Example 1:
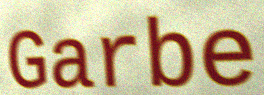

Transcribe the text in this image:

Garbe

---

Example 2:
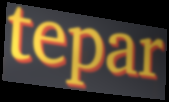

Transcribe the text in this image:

tepar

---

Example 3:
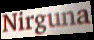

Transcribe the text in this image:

Nirguna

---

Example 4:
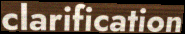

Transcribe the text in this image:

clarification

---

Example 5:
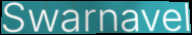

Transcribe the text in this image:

Swarnavel